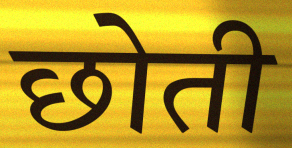
छोती